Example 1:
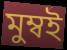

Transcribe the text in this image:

মুম্বই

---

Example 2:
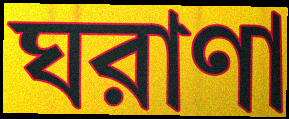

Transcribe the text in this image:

ঘরাণা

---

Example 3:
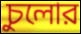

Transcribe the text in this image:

চুলোর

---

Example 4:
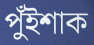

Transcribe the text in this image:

পুঁইশাক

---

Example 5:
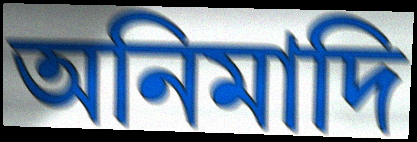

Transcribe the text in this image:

অনিমাদি